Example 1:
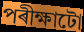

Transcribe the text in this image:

পৰীক্ষাটো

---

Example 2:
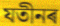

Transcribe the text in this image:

যতীনৰ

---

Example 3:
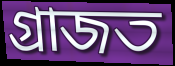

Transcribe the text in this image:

গ্ৰাজত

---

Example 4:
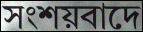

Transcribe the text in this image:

সংশয়বাদে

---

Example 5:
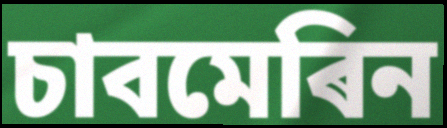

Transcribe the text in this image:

চাবমেৰিন